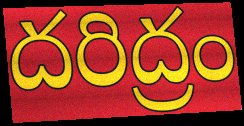
దరిద్రం